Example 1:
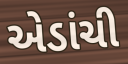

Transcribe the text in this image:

એડાંચી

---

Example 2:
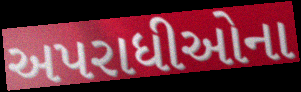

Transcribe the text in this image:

અપરાધીઓના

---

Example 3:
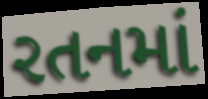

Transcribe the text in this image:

રતનમાં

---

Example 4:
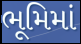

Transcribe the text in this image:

ભૂમિમાં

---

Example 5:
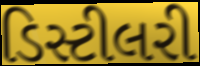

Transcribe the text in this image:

ડિસ્ટીલરી